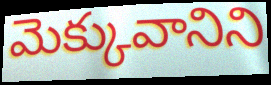
మెక్కువానిని